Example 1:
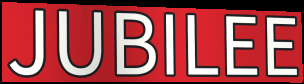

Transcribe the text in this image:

JUBILEE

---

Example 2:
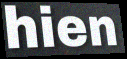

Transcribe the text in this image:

hien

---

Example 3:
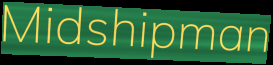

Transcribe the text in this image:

Midshipman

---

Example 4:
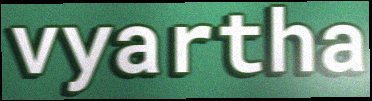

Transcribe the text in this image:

vyartha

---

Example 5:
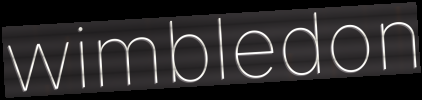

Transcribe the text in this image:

wimbledon